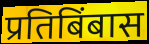
प्रतिबिंबास